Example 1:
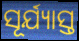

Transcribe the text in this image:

ସୂର୍ଯ୍ୟାସ୍ତ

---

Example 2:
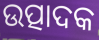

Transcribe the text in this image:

ଉତ୍ପାଦକ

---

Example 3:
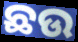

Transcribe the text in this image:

ଛଉ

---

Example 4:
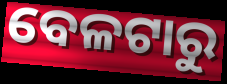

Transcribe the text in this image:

ବେଳଟାରୁ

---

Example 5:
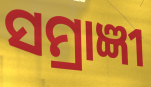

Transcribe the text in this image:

ସମ୍ରାଜ୍ଞୀ